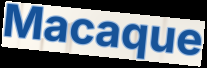
Macaque